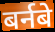
बर्नबे